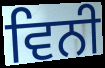
ਵਿਨੀ